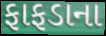
ફાફડાના